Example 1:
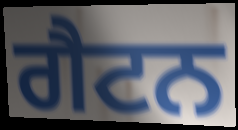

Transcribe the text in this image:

ਗੈਟਨ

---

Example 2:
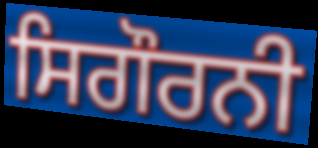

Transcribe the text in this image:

ਸਿਗੌਰਨੀ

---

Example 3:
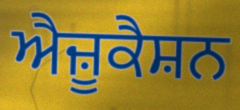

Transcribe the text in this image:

ਐਜ਼ੂਕੈਸ਼ਨ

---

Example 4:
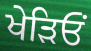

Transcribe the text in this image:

ਖੇੜਿਓਂ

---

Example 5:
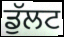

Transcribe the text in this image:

ਡੁੱਲਟ